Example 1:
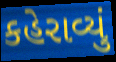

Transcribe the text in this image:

કહેરાવ્યું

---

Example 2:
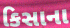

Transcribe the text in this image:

કિસાના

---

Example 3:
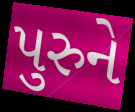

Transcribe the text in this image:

પુરુને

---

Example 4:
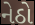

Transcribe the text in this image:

નેઠો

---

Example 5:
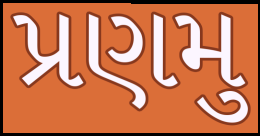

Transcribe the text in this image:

પ્રણમુ